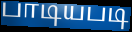
பாடியபடி